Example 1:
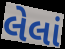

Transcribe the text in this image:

લેલાં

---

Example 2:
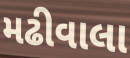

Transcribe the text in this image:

મઢીવાલા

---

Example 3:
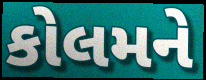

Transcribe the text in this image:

કોલમને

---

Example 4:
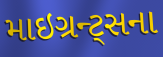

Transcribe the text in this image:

માઇગ્રન્ટ્સના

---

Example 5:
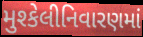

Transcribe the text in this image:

મુશ્કેલીનિવારણમાં